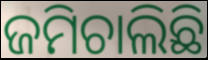
ଜମିଚାଲିଛି